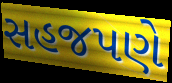
સહજપણે